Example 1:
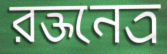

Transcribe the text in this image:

রক্তনেত্র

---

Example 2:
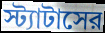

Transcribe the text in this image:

স্ট্যাটাসের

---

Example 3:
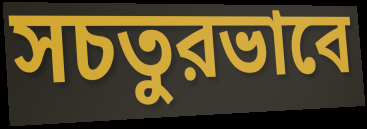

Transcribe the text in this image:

সচতুরভাবে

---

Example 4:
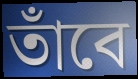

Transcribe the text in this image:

তাঁবে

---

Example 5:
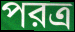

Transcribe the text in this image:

পরত্র